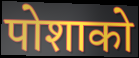
पोशाको